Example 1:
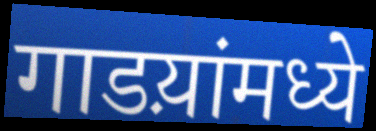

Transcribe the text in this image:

गाडय़ांमध्ये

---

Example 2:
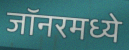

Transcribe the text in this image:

जॉनरमध्ये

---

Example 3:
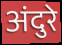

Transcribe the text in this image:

अंदुरे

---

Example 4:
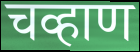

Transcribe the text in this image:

चव्हाण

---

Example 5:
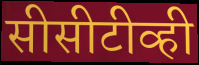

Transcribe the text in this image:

सीसीटीव्ही